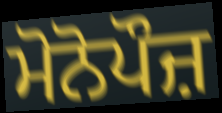
ਮੋਨੋਪੌਜ਼